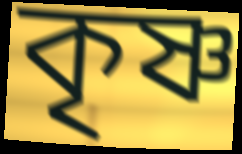
কৃষ্ণ